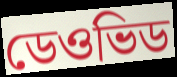
ডেওভিড